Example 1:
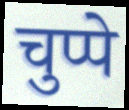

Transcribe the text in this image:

चुप्पे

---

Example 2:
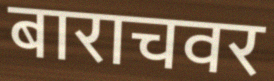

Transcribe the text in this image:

बाराचवर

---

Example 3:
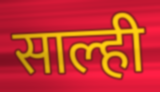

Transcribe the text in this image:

साल्ही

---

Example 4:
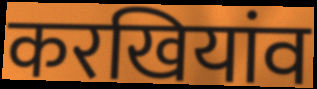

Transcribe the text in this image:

करखियांव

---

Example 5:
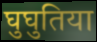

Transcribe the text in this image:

घुघुतिया